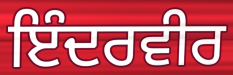
ਇੰਦਰਵੀਰ